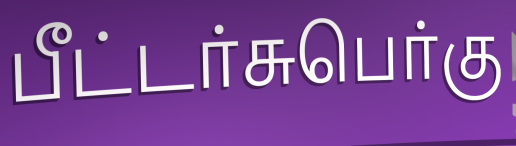
பீட்டர்சுபெர்கு